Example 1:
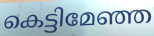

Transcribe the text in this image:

കെട്ടിമേഞ്ഞ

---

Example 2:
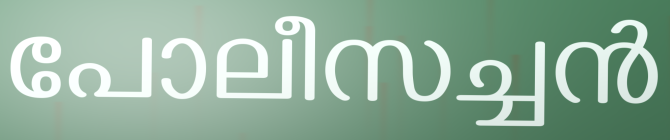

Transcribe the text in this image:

പോലീസച്ചൻ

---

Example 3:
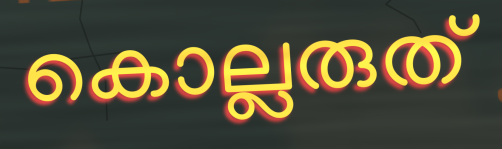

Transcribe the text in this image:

കൊല്ലരുത്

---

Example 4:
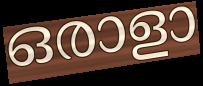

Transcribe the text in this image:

ഒരാളാ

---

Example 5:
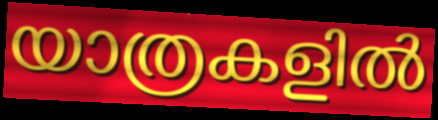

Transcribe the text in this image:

യാത്രകളിൽ